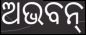
ଅଭବନ୍